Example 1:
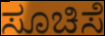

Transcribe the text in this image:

ಸೂಚಿಸೆ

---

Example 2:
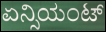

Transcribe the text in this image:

ಏನ್ಸಿಯಂಟ್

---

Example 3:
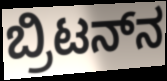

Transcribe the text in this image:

ಬ್ರಿಟನ್‌ನ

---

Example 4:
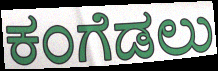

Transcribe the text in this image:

ಕಂಗೆಡಲು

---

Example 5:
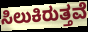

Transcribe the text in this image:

ಸಿಲುಕಿರುತ್ತವೆ